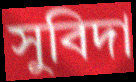
সুবিদা